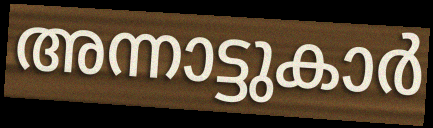
അന്നാട്ടുകാർ